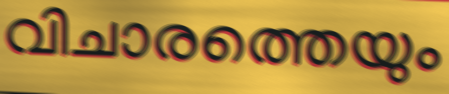
വിചാരത്തെയും